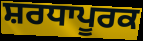
ਸ਼ਰਧਾਪੂਰਕ